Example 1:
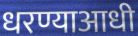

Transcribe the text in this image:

धरण्याआधी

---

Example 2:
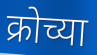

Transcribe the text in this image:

क्रोच्या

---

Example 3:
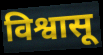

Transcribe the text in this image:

विश्वासू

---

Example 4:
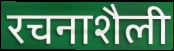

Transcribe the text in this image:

रचनाशैली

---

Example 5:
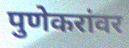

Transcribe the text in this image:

पुणेकरांवर